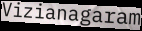
Vizianagaram